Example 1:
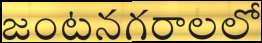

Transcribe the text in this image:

జంటనగరాలలో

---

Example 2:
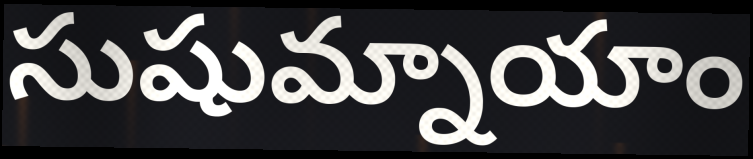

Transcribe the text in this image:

సుషుమ్నాయాం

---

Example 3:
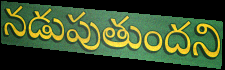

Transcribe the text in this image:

నడుపుతుందని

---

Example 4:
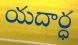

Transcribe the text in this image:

యదార్ధ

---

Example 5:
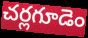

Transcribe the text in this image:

చర్లగూడెం